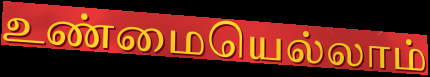
உண்மையெல்லாம்